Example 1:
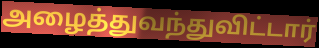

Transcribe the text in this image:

அழைத்துவந்துவிட்டார்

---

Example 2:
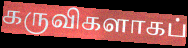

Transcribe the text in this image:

கருவிகளாகப்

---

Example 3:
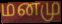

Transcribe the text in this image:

மனமு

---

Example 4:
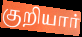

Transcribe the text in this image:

குறியார்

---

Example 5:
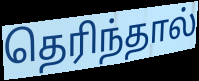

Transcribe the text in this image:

தெரிந்தால்